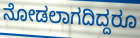
ನೋಡಲಾಗದಿದ್ದರೂ